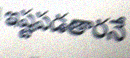
ఇష్టపడతారనే